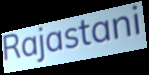
Rajastani